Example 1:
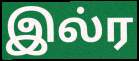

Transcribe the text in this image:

இல்ர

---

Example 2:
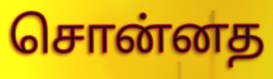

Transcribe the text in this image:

சொன்னத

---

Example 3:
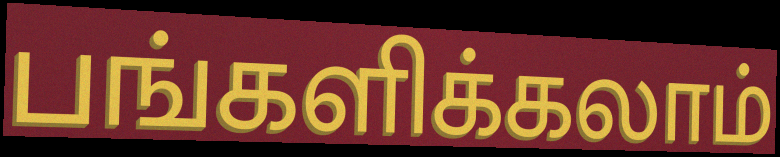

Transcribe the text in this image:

பங்களிக்கலாம்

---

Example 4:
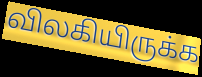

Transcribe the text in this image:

விலகியிருக்க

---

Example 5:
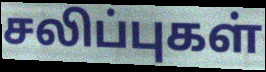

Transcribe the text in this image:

சலிப்புகள்